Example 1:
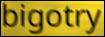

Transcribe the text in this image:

bigotry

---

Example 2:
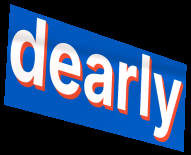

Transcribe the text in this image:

dearly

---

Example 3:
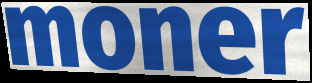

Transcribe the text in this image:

moner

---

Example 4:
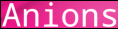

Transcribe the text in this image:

Anions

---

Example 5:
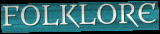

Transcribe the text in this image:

FOLKLORE